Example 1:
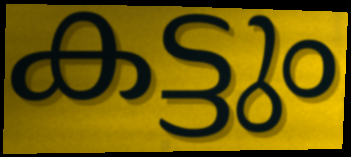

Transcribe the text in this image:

കട്ടും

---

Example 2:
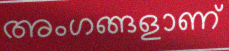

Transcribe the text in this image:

അംഗങ്ങളാണ്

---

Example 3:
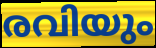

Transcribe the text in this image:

രവിയും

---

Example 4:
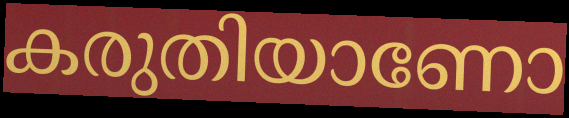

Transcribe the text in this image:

കരുതിയാണോ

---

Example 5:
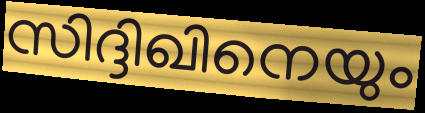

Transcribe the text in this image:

സിദ്ദിഖിനെയും